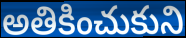
అతికించుకుని